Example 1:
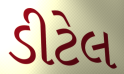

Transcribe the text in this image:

ડીટેલ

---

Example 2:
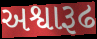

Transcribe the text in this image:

અશ્વારૂઢ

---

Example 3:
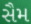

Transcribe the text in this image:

સૈમ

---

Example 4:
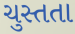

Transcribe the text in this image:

ચુસ્તતા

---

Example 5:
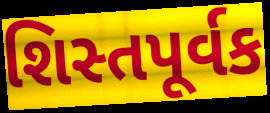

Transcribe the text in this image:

શિસ્તપૂર્વક